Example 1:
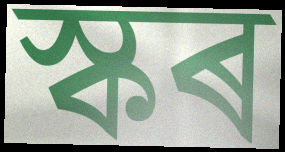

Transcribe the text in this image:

স্কৰ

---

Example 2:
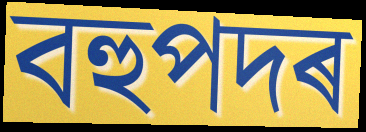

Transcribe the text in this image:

বহুপদৰ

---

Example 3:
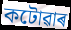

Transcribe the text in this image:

কটোৱাৰ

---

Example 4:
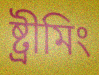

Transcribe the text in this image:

ষ্ট্ৰীমিং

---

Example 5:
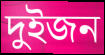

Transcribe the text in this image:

দুইজন